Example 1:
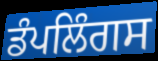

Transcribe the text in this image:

ਡੰਪਲਿੰਗਸ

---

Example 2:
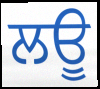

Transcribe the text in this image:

ਲਊ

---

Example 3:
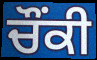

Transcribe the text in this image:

ਚੌਂਕੀ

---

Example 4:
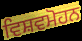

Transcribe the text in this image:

ਵਿਸ਼ਵਮੋਹਨ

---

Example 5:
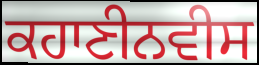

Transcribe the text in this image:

ਕਹਾਣੀਨਵੀਸ